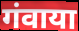
गंवाया